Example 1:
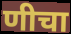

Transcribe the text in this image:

णीचा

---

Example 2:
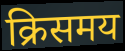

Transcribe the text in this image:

क्रिसमय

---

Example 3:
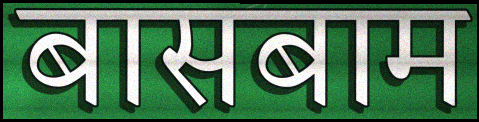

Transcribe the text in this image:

बासबाम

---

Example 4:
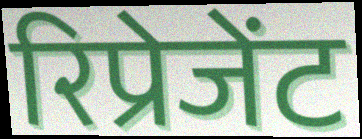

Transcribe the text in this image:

रिप्रेजेंट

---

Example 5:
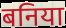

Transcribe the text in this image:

बनिया